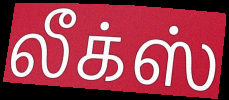
லீக்ஸ்